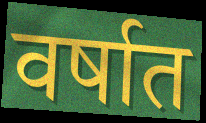
वर्षात